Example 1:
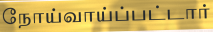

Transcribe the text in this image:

நோய்வாய்ப்பட்டார்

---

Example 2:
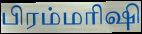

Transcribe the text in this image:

பிரம்மரிஷி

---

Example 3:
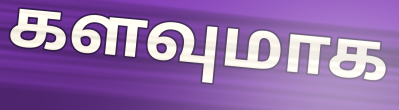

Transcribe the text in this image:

களவுமாக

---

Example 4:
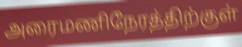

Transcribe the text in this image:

அரைமணிநேரத்திற்குள்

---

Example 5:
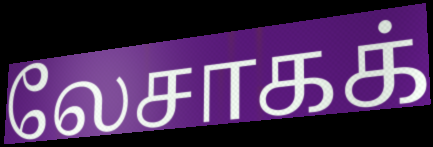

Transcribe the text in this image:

லேசாகக்